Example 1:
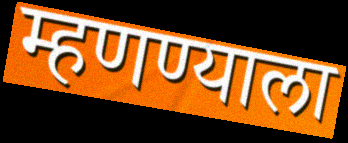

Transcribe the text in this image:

म्हणण्याला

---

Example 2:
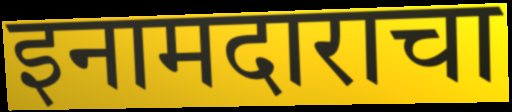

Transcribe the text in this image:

इनामदाराचा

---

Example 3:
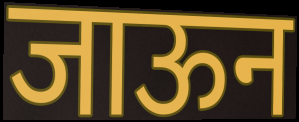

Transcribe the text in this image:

जाऊन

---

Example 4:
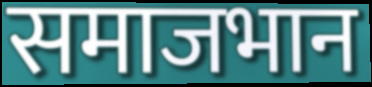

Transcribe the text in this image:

समाजभान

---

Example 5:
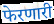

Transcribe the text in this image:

फेरणारी